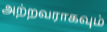
அற்றவராகவும்